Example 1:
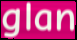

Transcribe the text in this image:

glan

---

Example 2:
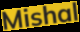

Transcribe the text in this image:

Mishal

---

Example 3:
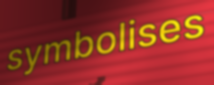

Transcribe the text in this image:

symbolises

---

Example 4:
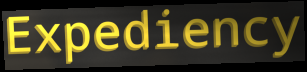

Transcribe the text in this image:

Expediency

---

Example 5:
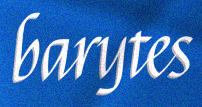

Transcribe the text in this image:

barytes